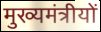
मुख्यमंत्रीयों